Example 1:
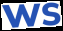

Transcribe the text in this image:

ws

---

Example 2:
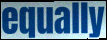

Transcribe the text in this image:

equally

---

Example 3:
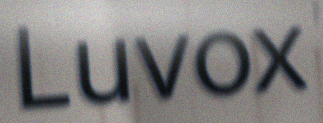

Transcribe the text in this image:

Luvox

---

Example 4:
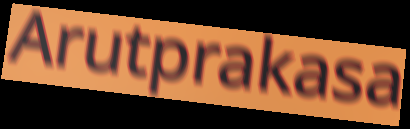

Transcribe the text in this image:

Arutprakasa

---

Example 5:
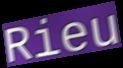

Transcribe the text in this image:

Rieu